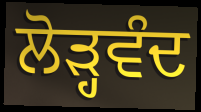
ਲੋੜ੍ਹਵੰਦ